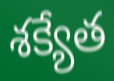
శక్యేత